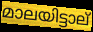
മാലയിട്ടാല്